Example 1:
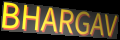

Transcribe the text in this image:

BHARGAV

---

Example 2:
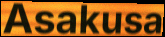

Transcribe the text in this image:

Asakusa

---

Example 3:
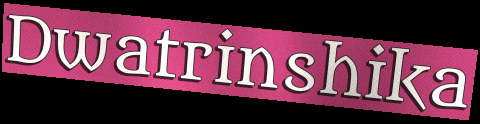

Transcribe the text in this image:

Dwatrinshika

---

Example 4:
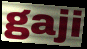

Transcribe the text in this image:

gaji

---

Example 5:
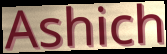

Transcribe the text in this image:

Ashich